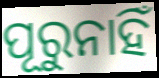
ପୂରୁନାହିଁ